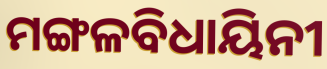
ମଙ୍ଗଳବିଧାୟିନୀ